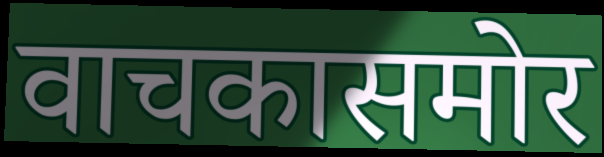
वाचकासमोर